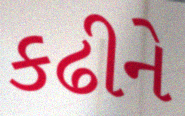
કઢીને